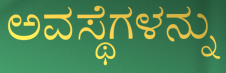
ಅವಸ್ಥೆಗಳನ್ನು